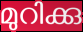
മുറിക്കു